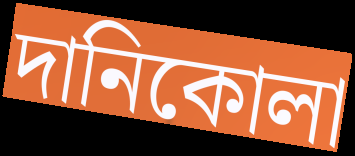
দানিকোলা